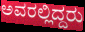
ಅವರಲ್ಲಿದ್ದರು